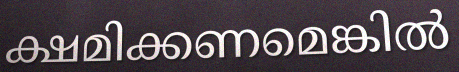
ക്ഷമിക്കണമെങ്കിൽ